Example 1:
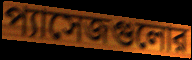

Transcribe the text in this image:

প্যাসেজগুলোর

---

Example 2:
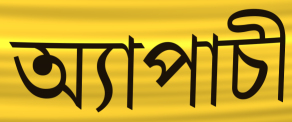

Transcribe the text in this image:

অ্যাপাচী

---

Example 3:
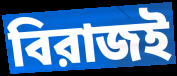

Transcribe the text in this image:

বিরাজই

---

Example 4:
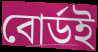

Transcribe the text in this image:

বোর্ডই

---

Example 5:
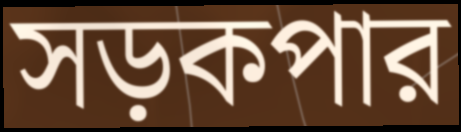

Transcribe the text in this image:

সড়কপার